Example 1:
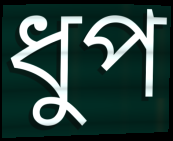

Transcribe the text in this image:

ধুপ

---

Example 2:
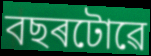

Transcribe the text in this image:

বছৰটোৱে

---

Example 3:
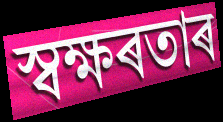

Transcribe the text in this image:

স্বক্ষৰতাৰ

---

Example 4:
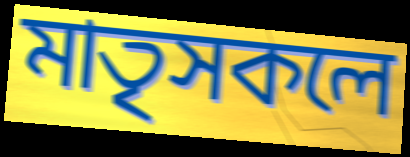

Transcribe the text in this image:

মাতৃসকলে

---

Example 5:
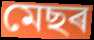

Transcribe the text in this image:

মেছৰ